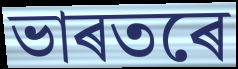
ভাৰতৰে